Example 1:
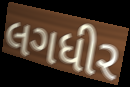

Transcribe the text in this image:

લગધીર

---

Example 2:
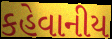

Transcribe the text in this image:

કહેવાનીય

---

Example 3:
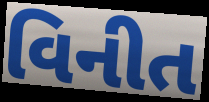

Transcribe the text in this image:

વિનીત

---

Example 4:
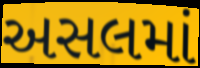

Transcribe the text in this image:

અસલમાં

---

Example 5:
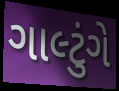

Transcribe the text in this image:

ગાલ્ટુંગે